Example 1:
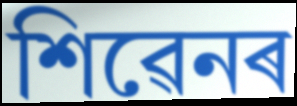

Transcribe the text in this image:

শিৱেনৰ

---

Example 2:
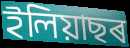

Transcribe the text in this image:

ইলিয়াছৰ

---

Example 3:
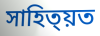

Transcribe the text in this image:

সাহিত্য়ত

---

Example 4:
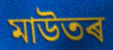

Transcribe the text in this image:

মাউতৰ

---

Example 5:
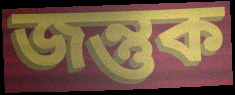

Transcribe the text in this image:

জন্তুক